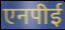
एनपीई